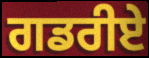
ਗਡਰੀਏ